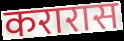
करारास